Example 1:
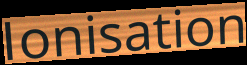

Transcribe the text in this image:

Ionisation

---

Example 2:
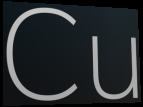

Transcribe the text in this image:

Cu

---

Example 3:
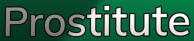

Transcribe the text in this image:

Prostitute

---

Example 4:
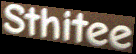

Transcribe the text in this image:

Sthitee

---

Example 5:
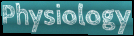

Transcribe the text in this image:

Physiology